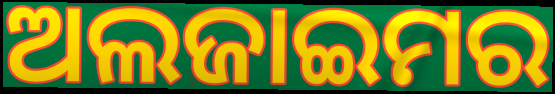
ଅଲଜାଇମର